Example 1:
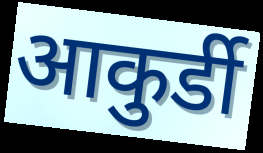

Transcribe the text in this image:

आकुर्डी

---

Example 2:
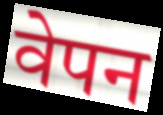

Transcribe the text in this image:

वेपन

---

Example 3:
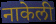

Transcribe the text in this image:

नाकेली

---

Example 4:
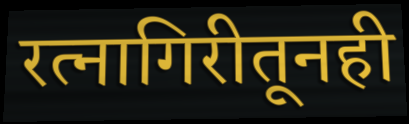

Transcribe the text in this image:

रत्नागिरीतूनही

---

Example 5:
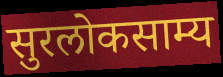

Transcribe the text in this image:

सुरलोकसाम्य